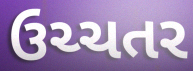
ઉચ્ચતર